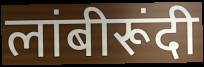
लांबीरूंदी